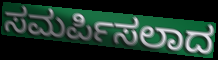
ಸಮರ್ಪಿಸಲಾದ